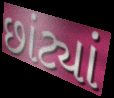
છાંટ્યાં